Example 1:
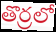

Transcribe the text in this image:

తొర్రలో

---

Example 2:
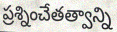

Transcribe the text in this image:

ప్రశ్నించేతత్వాన్ని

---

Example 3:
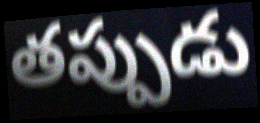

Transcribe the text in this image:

తప్పుడు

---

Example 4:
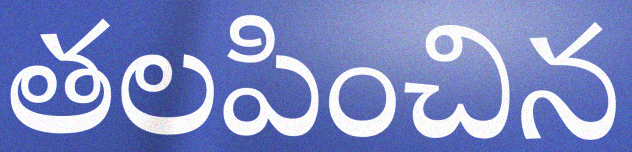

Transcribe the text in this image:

తలపించిన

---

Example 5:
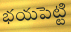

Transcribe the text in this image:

భయపెట్టి